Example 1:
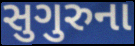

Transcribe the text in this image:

સુગુરુના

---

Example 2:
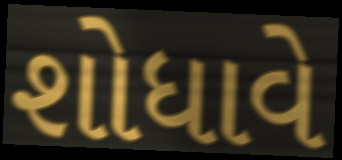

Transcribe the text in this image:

શોધાવે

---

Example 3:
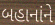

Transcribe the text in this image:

બહાનાંને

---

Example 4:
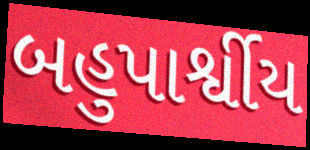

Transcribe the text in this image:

બહુપાર્શ્વીય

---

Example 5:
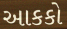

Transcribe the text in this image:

આકકો